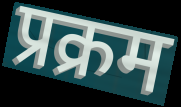
प्रक्रम